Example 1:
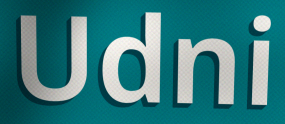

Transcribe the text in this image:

Udni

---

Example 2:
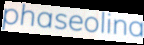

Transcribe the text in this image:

phaseolina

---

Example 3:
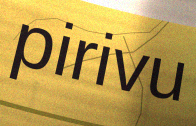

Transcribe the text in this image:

pirivu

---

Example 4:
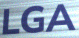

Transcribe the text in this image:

LGA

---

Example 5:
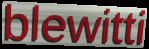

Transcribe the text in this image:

blewitti